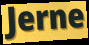
Jerne